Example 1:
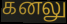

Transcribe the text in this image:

கனலு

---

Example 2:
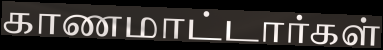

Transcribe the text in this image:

காணமாட்டார்கள்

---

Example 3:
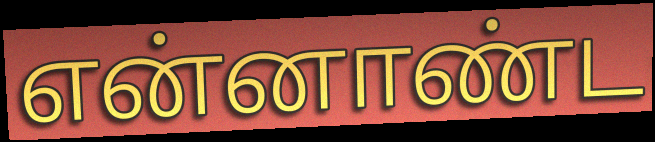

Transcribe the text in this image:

என்னாண்ட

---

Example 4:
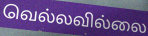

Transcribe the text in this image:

வெல்லவில்லை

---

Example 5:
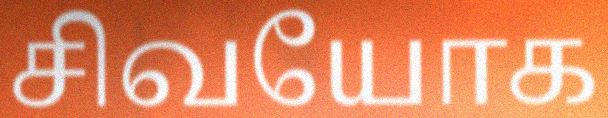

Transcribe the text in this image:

சிவயோக